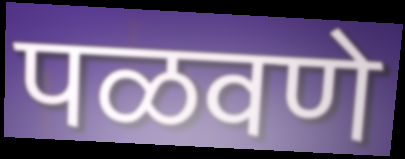
पळवणे